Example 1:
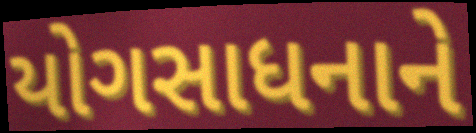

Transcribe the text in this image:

યોગસાધનાને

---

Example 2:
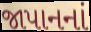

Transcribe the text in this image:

જાપાનનાં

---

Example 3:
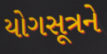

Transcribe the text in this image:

યોગસૂત્રને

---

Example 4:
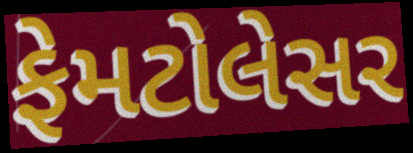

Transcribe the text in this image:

ફેમટોલેસર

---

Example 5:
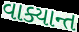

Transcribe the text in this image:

વાક્યાન્ત